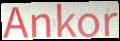
Ankor